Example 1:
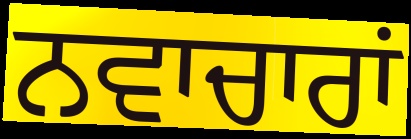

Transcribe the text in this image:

ਨਵਾਚਾਰਾਂ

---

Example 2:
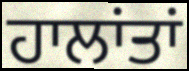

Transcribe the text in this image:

ਹਾਲਾਂਤਾਂ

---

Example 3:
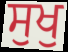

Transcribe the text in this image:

ਸੁਖੁ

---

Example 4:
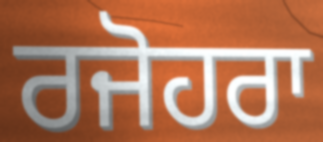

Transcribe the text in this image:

ਰਜੋਹਰਾ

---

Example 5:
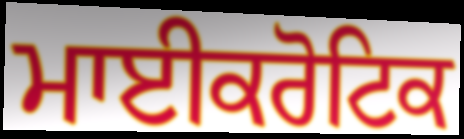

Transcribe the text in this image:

ਮਾਈਕਰੋਟਿਕ